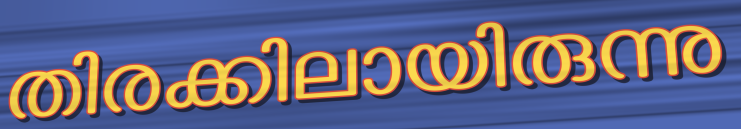
തിരക്കിലായിരുന്നു